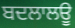
ਬਦਲਾਲਊ